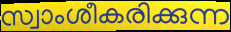
സ്വാംശീകരിക്കുന്ന